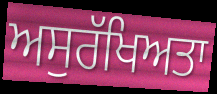
ਅਸੁਰੱਖਿਅਤਾ